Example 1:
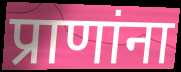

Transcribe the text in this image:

प्राणांना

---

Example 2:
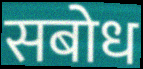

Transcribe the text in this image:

सबोध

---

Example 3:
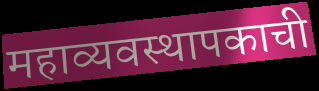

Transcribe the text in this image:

महाव्यवस्थापकाची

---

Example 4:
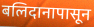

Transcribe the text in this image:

बलिदानापासून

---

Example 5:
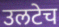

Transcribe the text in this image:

उलटेच